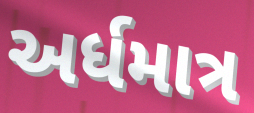
અર્ધમાત્ર